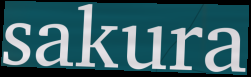
sakura